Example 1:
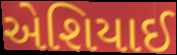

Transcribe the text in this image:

એશિયાઈ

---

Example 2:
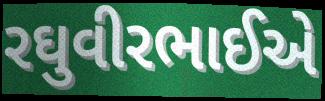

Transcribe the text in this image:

રઘુવીરભાઈએ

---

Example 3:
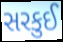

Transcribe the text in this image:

સરકુઈ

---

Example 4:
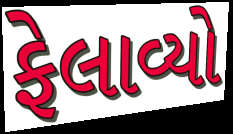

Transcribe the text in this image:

ફેલાવ્યો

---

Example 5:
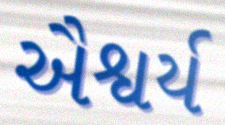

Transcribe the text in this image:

ઐશ્વર્ય